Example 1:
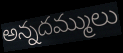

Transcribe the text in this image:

అన్నదమ్ములు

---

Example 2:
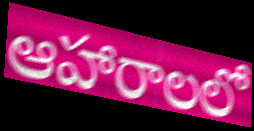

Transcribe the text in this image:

ఆహారాలలో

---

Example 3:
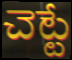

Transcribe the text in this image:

చెట్టే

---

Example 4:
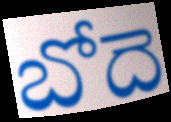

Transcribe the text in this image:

బోదె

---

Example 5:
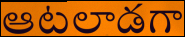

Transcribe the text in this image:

ఆటలాడగా